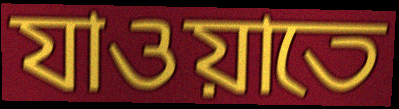
যাওয়াতে